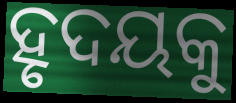
ହୃଦୟକୁ